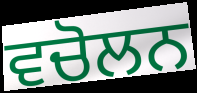
ਵਚੋਲਨ